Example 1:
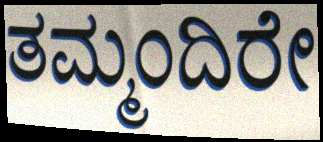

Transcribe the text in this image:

ತಮ್ಮಂದಿರೇ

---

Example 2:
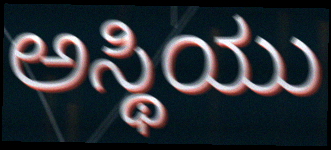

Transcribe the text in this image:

ಅಸ್ಥಿಯು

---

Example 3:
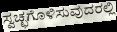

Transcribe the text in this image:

ಸ್ವಚ್ಛಗೊಳಿಸುವುದರಲ್ಲಿ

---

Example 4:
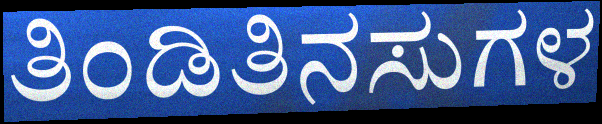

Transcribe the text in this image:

ತಿಂಡಿತಿನಸುಗಳ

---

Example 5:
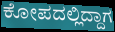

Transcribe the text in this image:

ಕೋಪದಲ್ಲಿದ್ದಾಗ